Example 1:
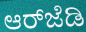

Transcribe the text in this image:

ಆರ್‌ಜೆಡಿ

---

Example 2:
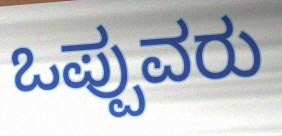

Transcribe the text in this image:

ಒಪ್ಪುವರು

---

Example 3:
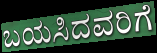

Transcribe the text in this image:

ಬಯಸಿದವರಿಗೆ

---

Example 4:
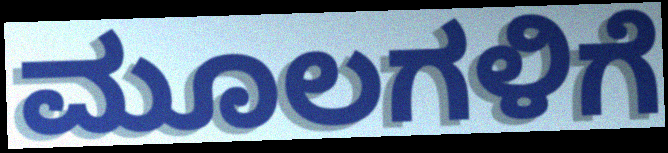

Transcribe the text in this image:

ಮೂಲಗಳಿಗೆ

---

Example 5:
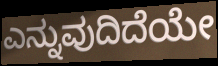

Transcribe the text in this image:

ಎನ್ನುವುದಿದೆಯೇ